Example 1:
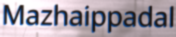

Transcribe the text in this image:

Mazhaippadal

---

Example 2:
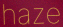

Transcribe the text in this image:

haze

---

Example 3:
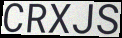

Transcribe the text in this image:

CRXJS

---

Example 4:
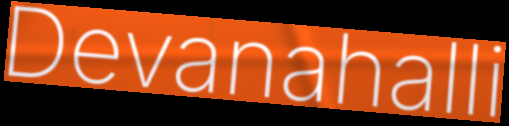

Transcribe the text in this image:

Devanahalli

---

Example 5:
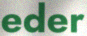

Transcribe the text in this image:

eder